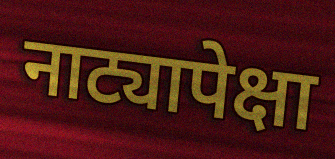
नाट्यापेक्षा